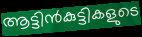
ആട്ടിൻകുട്ടികളുടെ